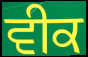
ਵੀਕ